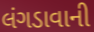
લંગડાવાની